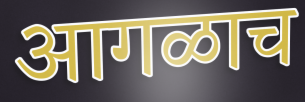
आगळाच